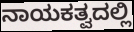
ನಾಯಕತ್ವದಲ್ಲಿ